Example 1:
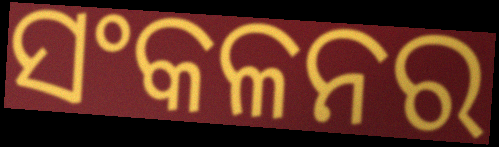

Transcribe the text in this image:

ସଂକଳନର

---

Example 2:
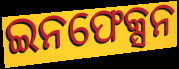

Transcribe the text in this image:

ଇନଫେକ୍ସନ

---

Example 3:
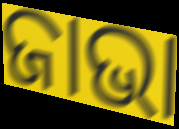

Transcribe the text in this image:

ଜାଭା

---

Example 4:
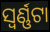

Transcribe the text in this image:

ସ୍ୱର୍ଣ୍ଣଟା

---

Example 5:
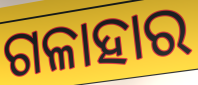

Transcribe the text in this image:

ଗଳାହାର